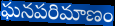
ఘనపరిమాణం